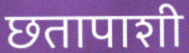
छतापाशी